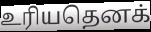
உரியதெனக்